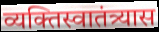
व्यक्तिस्वातंत्र्यास